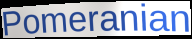
Pomeranian